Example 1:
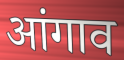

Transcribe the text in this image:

आंगाव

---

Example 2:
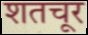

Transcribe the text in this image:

शतचूर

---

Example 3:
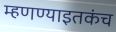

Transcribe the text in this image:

म्हणण्याइतकंच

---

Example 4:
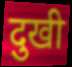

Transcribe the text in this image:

दुखी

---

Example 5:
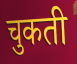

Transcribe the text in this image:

चुकती